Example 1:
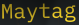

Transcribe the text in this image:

Maytag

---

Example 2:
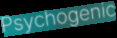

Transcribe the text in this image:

Psychogenic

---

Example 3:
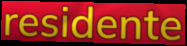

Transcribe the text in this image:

residente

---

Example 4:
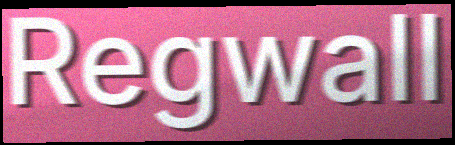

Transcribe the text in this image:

Regwall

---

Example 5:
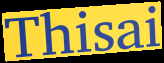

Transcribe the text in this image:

Thisai